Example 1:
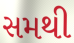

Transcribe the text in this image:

સમથી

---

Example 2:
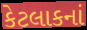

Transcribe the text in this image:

કેટલાકનાં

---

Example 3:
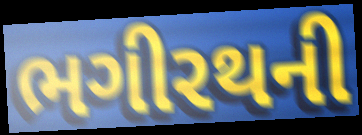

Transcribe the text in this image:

ભગીરથની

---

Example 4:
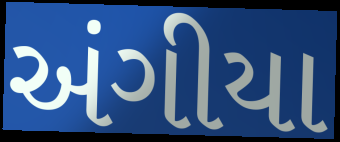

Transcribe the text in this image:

અંગીયા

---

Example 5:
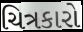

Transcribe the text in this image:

ચિત્રકારો